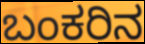
ಬಂಕರಿನ